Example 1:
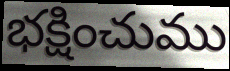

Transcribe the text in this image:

భక్షించుము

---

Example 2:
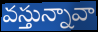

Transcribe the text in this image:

వస్తున్నావా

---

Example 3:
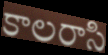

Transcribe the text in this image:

కాలరాసి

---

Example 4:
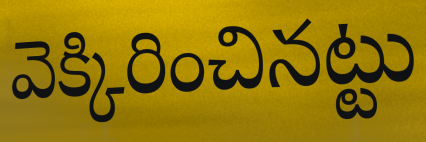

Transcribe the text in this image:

వెక్కిరించినట్టు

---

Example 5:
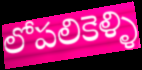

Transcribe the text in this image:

లోపలికెళ్ళి